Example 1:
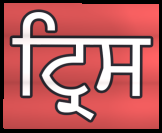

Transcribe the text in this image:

ਟ੍ਰਿਸ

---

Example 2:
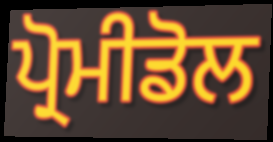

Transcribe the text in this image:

ਪ੍ਰੋਮੀਡੋਲ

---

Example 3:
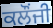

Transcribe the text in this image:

ਕਲੌਂਜੀ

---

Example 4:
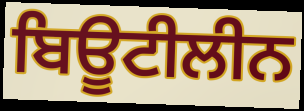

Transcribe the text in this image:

ਬਿਊਟੀਲੀਨ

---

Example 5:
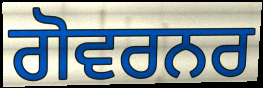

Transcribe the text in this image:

ਗੋਵਰਨਰ